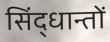
सिंद्धान्तों